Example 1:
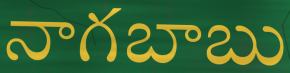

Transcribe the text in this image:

నాగబాబు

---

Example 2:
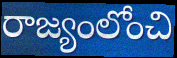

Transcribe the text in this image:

రాజ్యంలోంచి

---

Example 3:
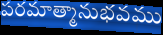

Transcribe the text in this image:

పరమాత్మానుభవము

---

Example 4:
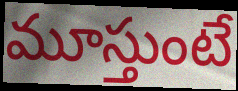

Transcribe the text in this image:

మూస్తుంటే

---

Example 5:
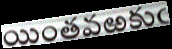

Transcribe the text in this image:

యింతవఱకుఁ